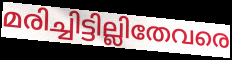
മരിച്ചിട്ടില്ലിതേവരെ